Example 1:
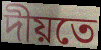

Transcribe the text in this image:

দীয়তে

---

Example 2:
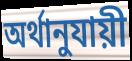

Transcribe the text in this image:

অর্থানুযায়ী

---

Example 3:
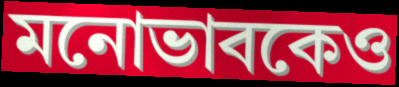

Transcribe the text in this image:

মনোভাবকেও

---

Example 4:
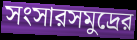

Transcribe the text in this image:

সংসারসমুদ্রের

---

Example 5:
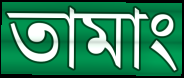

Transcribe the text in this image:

তামাং